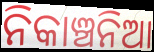
ନିକାଞ୍ଚନିଆ